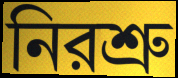
নিরশ্রু